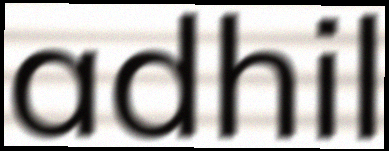
adhil